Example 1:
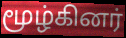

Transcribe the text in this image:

மூழ்கினர்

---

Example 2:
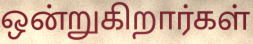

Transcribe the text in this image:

ஒன்றுகிறார்கள்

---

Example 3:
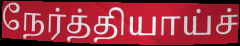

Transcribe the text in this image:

நேர்த்தியாய்ச்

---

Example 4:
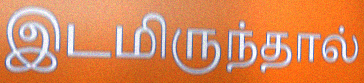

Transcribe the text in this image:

இடமிருந்தால்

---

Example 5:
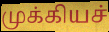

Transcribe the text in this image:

முக்கியச்